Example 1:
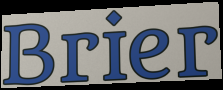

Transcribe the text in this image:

Brier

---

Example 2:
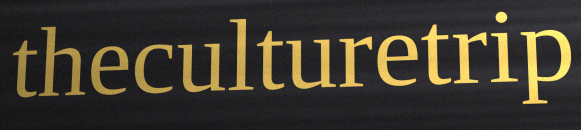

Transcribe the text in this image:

theculturetrip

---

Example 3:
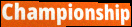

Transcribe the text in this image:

Championship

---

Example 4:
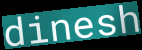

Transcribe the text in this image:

dinesh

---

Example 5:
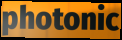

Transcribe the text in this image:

photonic